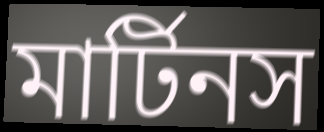
মার্টিনস